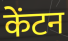
केंटन